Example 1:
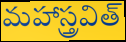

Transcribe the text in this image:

మహాస్త్రవిత్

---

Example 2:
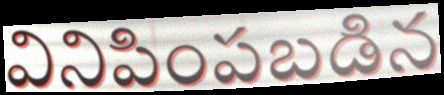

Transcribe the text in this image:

వినిపింపబడిన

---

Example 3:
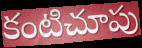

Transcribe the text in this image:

కంటిచూపు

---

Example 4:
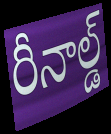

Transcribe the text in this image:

రీనాల్డ్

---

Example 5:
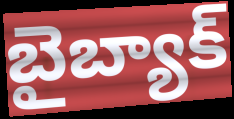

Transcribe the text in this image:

బైబ్యాక్